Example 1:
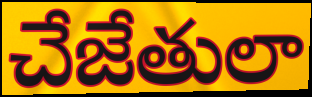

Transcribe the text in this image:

చేజేతులా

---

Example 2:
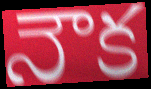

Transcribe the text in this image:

నౌక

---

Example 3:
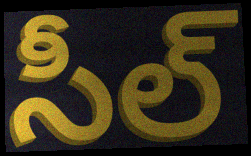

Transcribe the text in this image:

సీల్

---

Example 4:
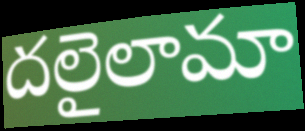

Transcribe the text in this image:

దలైలామా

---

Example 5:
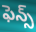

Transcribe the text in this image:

ఫెన్స్